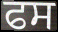
ਫਸ